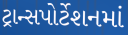
ટ્રાન્સપોર્ટેશનમાં